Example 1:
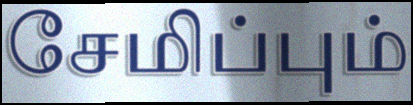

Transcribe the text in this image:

சேமிப்பும்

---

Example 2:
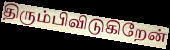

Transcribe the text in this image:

திரும்பிவிடுகிறேன்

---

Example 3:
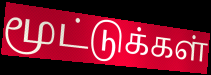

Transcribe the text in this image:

மூட்டுக்கள்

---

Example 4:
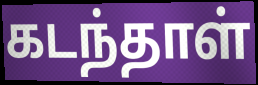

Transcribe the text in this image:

கடந்தாள்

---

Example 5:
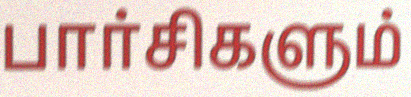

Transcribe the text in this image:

பார்சிகளும்